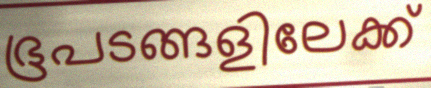
ഭൂപടങ്ങളിലേക്ക്